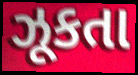
ઝૂકતા